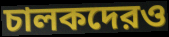
চালকদেরও